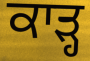
ਕਾੜ੍ਹ